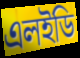
এলইডি